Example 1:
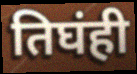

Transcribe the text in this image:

तिघंही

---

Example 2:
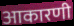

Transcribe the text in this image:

आकारणी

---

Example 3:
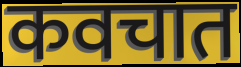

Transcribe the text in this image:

कवचात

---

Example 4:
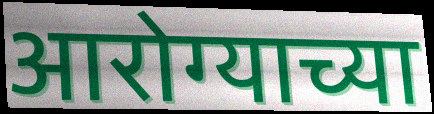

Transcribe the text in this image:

आरोग्याच्या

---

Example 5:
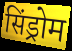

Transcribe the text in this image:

सिंड्रोम